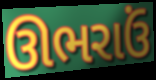
ઊભરાઉં